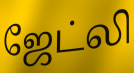
ஜேட்லி